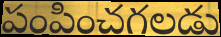
పంపించగలడు